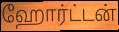
ஹோர்ட்டன்